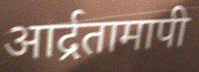
आर्द्रतामापी